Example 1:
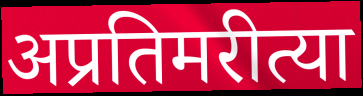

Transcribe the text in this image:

अप्रतिमरीत्या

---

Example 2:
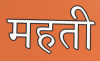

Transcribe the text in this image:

महती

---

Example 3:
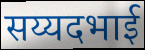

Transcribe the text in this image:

सय्यदभाई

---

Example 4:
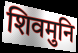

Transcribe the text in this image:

शिवमुनि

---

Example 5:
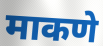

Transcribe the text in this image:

माकणे